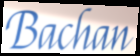
Bachan